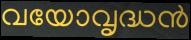
വയോവൃദ്ധൻ